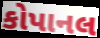
કોપાનલ